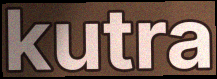
kutra